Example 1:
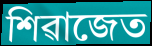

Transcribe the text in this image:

শিৱাজেত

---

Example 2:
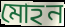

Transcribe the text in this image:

মোহন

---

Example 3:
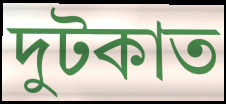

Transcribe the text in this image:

দুটকাত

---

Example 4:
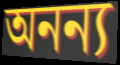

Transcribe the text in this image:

অনন্য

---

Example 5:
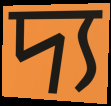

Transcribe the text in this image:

দ্য